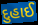
દુહાઈ